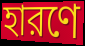
হারণে